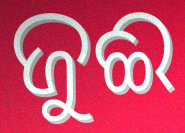
ଜୁଈ